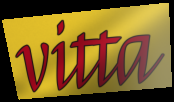
vitta